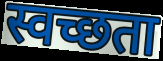
स्वच्छता